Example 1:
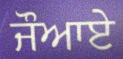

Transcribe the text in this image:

ਜੌਆਏ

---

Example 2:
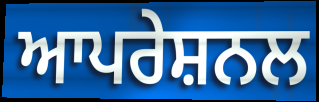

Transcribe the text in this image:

ਆਪਰੇਸ਼ਨਲ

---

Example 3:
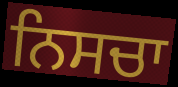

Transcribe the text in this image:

ਨਿਸਚਾ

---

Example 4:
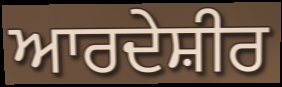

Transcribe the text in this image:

ਆਰਦੇਸ਼ੀਰ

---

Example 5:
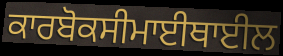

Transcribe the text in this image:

ਕਾਰਬੋਕਸੀਮਾਈਥਾਈਲ